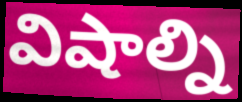
విషాల్ని